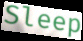
Sleep